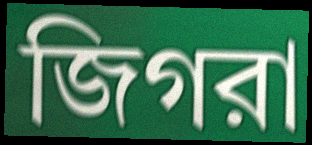
জিগরা